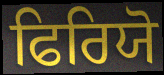
ਫਿਰਿਯੋ